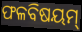
ଫଳବିଷୟମ୍